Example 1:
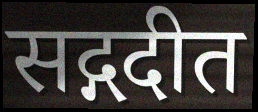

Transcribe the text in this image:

सद्गदीत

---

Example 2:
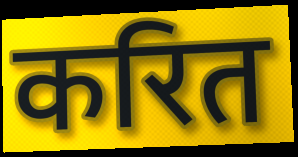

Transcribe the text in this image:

करित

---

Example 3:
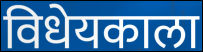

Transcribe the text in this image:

विधेयकाला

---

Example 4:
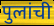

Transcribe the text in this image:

पुलांची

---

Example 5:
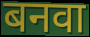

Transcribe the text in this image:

बनवा